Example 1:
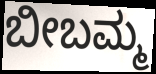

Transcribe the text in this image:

ಬೀಬಮ್ಮ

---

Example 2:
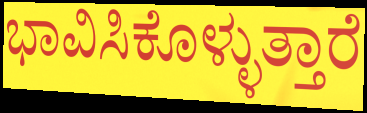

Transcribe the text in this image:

ಭಾವಿಸಿಕೊಳ್ಳುತ್ತಾರೆ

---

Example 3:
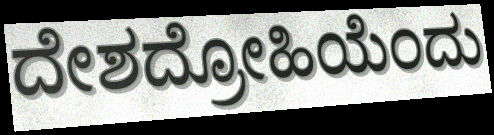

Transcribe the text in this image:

ದೇಶದ್ರೋಹಿಯೆಂದು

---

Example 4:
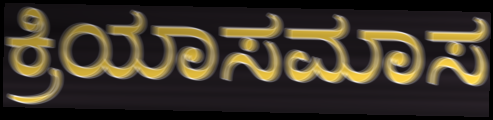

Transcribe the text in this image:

ಕ್ರಿಯಾಸಮಾಸ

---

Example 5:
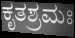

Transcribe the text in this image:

ಕೃತಶ್ರಮಃ